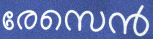
രേസെൻ